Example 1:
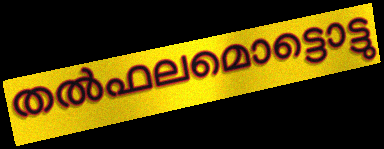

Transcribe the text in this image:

തൽഫലമൊട്ടൊട്ടു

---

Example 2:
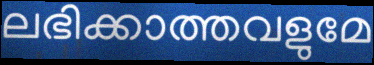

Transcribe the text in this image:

ലഭിക്കാത്തവളുമേ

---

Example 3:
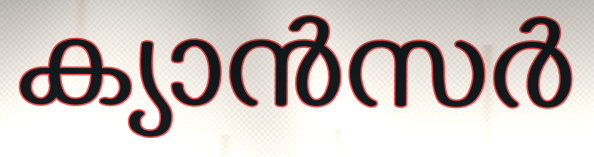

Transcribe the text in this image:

ക്യാൻസർ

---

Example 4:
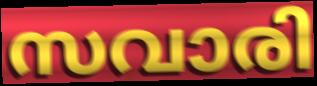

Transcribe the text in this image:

സവാരി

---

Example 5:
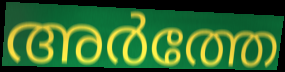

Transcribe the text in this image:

അർത്തേ